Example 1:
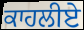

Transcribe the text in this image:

ਕਾਹਲੀਏ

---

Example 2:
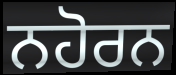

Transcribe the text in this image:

ਨਹੋਰਨ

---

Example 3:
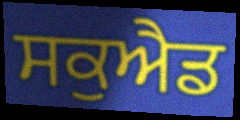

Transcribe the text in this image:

ਸਕੁਐਡ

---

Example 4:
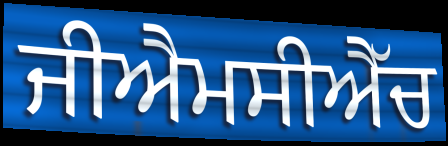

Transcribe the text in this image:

ਜੀਐਮਸੀਐੱਚ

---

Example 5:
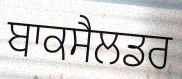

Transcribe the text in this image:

ਬਾਕਸੈਲਡਰ